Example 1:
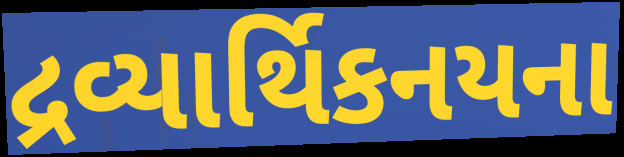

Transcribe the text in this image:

દ્રવ્યાર્થિકનયના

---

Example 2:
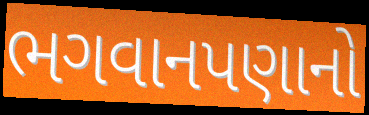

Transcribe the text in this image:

ભગવાનપણાનો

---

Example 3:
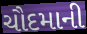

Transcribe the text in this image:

ચૌદમાની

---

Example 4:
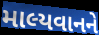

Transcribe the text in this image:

માલ્યવાનને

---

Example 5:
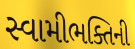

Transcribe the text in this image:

સ્વામીભક્તિની